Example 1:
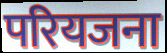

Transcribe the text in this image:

परियजना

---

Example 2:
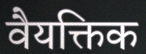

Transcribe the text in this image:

वैयक्तिक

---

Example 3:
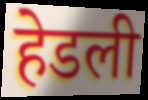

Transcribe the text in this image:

हेडली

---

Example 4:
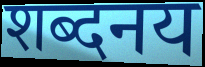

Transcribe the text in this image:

शब्दनय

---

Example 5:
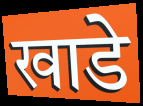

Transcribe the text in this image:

खाडे